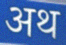
अथ